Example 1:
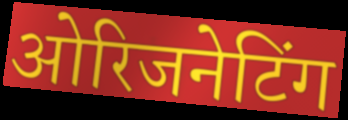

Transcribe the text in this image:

ओरिजनेटिंग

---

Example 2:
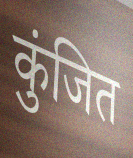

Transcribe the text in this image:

कुंजित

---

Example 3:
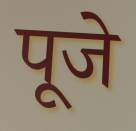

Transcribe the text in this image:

पूजे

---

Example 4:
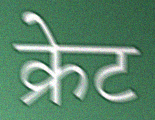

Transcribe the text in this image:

क्रेट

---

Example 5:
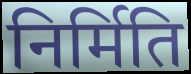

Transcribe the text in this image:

निर्मिति